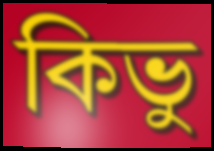
কিভু